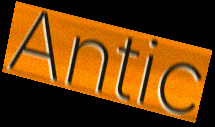
Antic